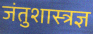
जंतुशास्त्रज्ञ